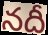
నదీ